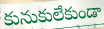
కునుకులేకుండా